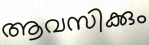
ആവസിക്കും